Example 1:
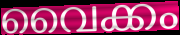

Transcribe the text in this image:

വൈക്കം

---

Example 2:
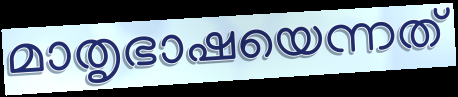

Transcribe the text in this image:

മാതൃഭാഷയെന്നത്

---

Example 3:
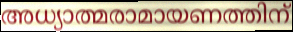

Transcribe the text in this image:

അധ്യാത്മരാമായണത്തിന്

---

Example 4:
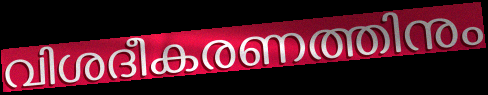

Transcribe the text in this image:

വിശദീകരണത്തിനും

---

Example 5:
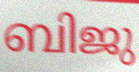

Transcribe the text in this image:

ബിജു